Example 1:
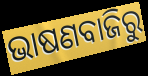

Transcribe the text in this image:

ଭାଷଣବାଜିରୁ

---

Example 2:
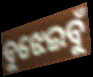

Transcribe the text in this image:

ବୁଝେଇବୁଁ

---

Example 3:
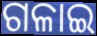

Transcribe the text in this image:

ଗଳାଇ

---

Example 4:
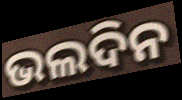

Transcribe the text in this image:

ଭଲଦିନ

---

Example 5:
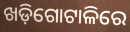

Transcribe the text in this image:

ଖଡ଼ିଗୋଟାଳିରେ